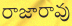
రాజారావు